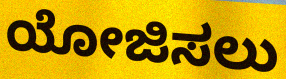
ಯೋಜಿಸಲು